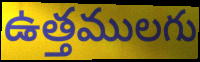
ఉత్తములగు